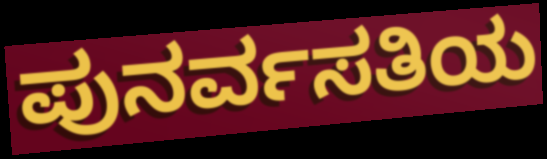
ಪುನರ್ವಸತಿಯ